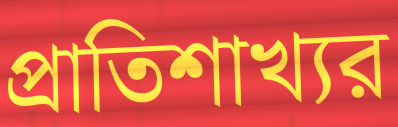
প্রাতিশাখ্যর